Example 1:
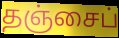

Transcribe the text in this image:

தஞ்சைப்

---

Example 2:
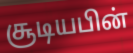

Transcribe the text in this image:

சூடியபின்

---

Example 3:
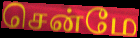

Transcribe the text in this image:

சென்மே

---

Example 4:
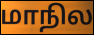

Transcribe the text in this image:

மாநில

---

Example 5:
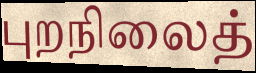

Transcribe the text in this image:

புறநிலைத்